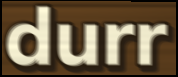
durr